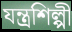
যন্ত্রশিল্পী